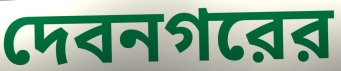
দেবনগরের